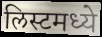
लिस्टमध्ये